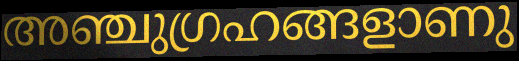
അഞ്ചുഗ്രഹങ്ങളാണു